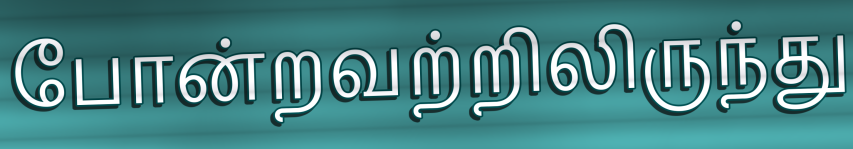
போன்றவற்றிலிருந்து